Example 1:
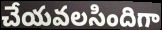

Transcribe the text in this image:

చేయవలసిందిగా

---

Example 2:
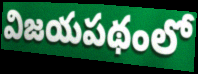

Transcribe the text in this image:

విజయపథంలో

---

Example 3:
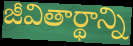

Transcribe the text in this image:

జీవితార్థాన్ని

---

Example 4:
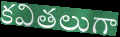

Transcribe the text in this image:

కవితలుగా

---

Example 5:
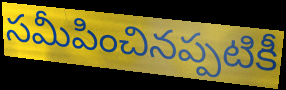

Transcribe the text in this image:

సమీపించినప్పటికీ